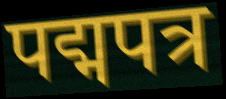
पद्मपत्र